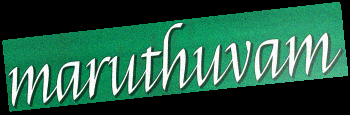
maruthuvam